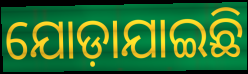
ଯୋଡ଼ାଯାଇଛି